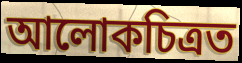
আলোকচিত্ৰত